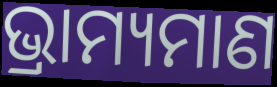
ଭ୍ରାମ୍ୟମାଣ